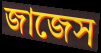
জাজেস